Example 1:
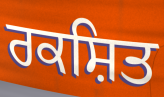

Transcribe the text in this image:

ਰਕਸ਼ਿਤ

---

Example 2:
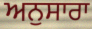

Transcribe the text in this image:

ਅਨੁਸਾਰਾ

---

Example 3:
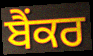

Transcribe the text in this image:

ਬੈਂਕਰ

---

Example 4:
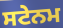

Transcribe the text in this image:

ਸਟੇਨਮ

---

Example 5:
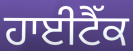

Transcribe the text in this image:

ਹਾਈਟੈੱਕ